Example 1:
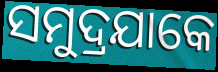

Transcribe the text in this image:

ସମୁଦ୍ରଯାକେ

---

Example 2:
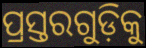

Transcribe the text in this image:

ପ୍ରସ୍ତରଗୁଡ଼ିକୁ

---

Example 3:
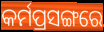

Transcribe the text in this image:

କର୍ମପ୍ରସଙ୍ଗରେ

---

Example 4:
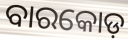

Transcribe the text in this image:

ବାରକୋଡ଼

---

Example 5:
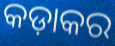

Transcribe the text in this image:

କଡ଼ାକର